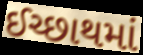
ઈચ્છાથમાં